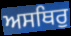
ਅਸਥਿਰੁ